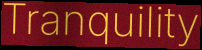
Tranquility